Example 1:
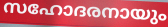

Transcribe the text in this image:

സഹോദരനായും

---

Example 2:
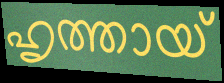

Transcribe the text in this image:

ഹൃത്തായ്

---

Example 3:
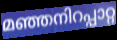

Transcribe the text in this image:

മഞ്ഞനിറപ്പാറ്റ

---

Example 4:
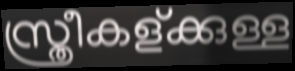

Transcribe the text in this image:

സ്ത്രീകള്ക്കുള്ള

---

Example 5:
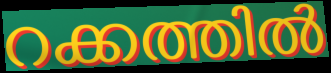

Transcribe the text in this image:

റക്കത്തിൽ